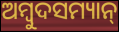
ଅମ୍ୱୁଦସମ୍ୟାନ୍